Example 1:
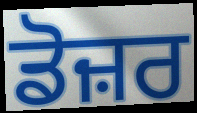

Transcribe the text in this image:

ਡੋਜ਼ਰ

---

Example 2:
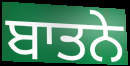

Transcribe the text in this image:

ਬਾਤਨੇ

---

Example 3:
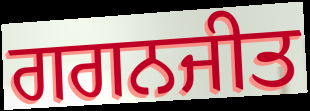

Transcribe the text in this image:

ਗਗਨਜੀਤ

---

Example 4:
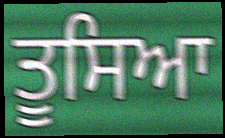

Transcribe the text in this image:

ਤੂਸਿਆ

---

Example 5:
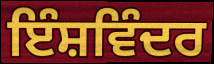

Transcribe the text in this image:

ਇੰਸ਼ਵਿੰਦਰ